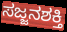
ಸಜ್ಜನಶಕ್ತಿ